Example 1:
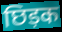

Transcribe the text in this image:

छिड़क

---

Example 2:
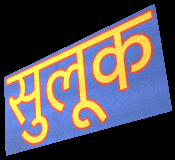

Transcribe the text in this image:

सुलूक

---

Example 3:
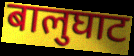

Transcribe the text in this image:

बालुघाट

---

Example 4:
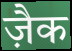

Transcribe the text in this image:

ज़ैक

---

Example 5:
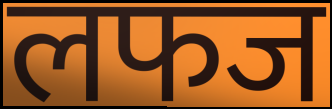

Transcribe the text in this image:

लफज